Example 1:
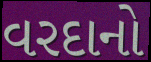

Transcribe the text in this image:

વરદાનો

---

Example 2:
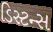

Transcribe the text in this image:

ડિસ્ટન્સ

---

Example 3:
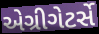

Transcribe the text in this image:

એગ્રીગેટર્સે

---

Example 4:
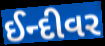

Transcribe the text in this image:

ઈન્દીવર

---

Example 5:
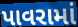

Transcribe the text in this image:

પાવરામાં